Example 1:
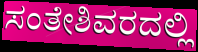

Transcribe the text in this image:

ಸಂತೇಶಿವರದಲ್ಲಿ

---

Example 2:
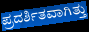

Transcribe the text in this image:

ಪ್ರದರ್ಶಿತವಾಗಿತ್ತು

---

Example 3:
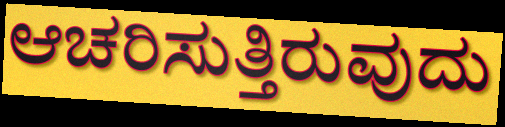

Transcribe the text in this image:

ಆಚರಿಸುತ್ತಿರುವುದು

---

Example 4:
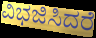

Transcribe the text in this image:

ವಿಭಜಿಸಿದರೆ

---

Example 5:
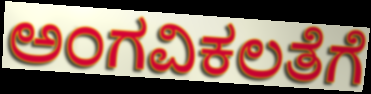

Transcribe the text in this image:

ಅಂಗವಿಕಲತೆಗೆ